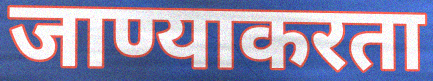
जाण्याकरता